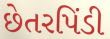
છેતરપિંડી